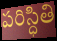
పరిస్ధితి